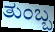
ತುಂಬ್ಬ